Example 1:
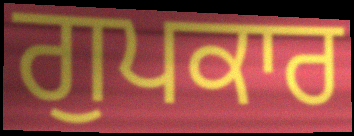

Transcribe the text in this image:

ਗੁਪਕਾਰ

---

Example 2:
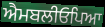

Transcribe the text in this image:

ਐਮਬਲੀਓਪਿਆ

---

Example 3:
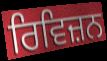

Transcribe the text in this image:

ਰਿਵਿਜ਼ਨ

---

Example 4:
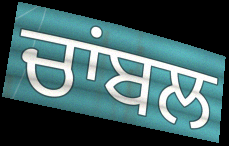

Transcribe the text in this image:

ਚਾਂਬਲ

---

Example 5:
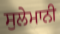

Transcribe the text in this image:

ਸੁਲੇਮਾਨੀ